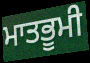
ਮਾਤਭੂਮੀ